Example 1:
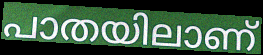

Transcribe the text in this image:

പാതയിലാണ്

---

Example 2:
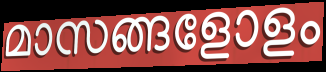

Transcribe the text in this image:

മാസങ്ങളോളം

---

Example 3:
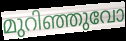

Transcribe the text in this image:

മുറിഞ്ഞുവോ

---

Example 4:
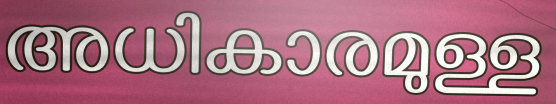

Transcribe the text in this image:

അധികാരമുള്ള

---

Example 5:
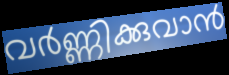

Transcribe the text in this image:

വർണ്ണിക്കുവാൻ